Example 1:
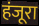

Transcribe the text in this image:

हंजूरा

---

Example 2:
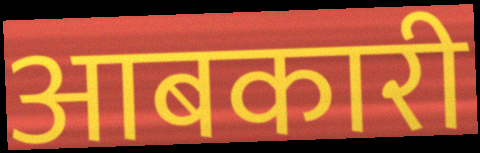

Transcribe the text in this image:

आबकारी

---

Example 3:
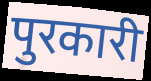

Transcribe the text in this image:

पुरकारी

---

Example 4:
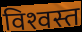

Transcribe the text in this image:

विश्वस्त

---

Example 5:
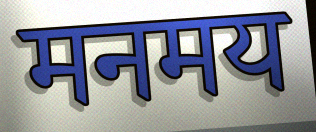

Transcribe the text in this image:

मनमय